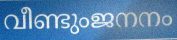
വീണ്ടുംജനനം